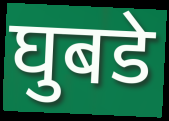
घुबडे